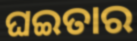
ଘଇତାର